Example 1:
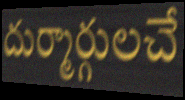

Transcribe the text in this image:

దుర్మార్గులచే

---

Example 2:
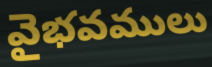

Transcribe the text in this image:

వైభవములు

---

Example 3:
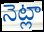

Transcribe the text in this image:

నెట్లా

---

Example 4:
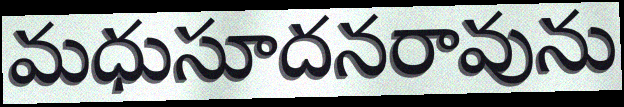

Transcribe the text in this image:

మధుసూదనరావును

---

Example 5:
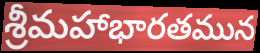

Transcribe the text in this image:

శ్రీమహాభారతమున